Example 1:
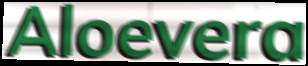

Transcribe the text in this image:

Aloevera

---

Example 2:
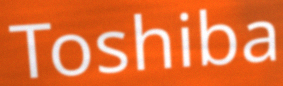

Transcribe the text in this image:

Toshiba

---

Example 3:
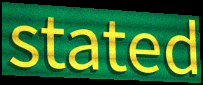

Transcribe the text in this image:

stated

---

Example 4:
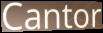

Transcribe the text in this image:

Cantor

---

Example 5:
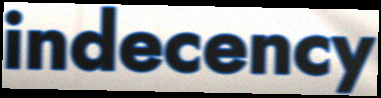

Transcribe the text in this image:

indecency